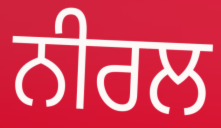
ਨੀਰਲ